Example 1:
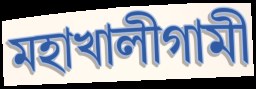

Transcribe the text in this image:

মহাখালীগামী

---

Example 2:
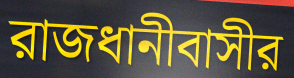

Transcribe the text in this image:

রাজধানীবাসীর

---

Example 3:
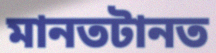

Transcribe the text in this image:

মানতটানত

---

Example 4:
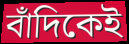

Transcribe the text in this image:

বাঁদিকেই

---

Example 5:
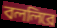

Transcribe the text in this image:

বললিরে